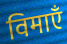
विमाएँ